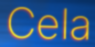
Cela